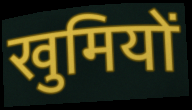
खुमियों